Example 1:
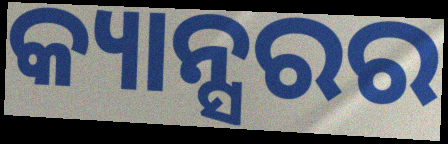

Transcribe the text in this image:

କ୍ୟାନ୍ସରର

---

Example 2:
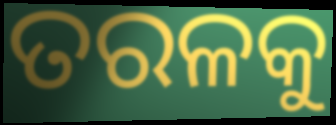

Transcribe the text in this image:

ତରଳକୁ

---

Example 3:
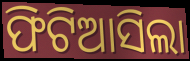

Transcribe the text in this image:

ଫିଟିଆସିଲା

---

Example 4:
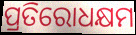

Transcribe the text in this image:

ପ୍ରତିରୋଧକ୍ଷମ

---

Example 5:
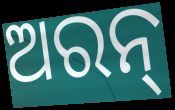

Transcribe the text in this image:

ଅରନ୍